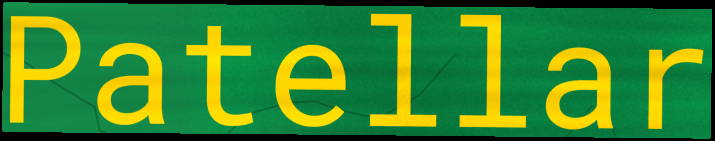
Patellar